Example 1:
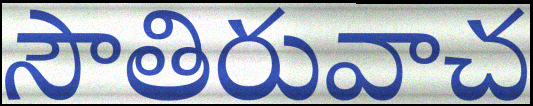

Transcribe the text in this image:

సౌతిరువాచ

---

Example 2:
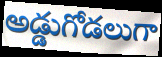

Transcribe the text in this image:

అడ్డుగోడలుగా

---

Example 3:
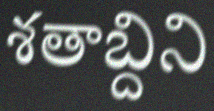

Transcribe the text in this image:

శతాబ్దిని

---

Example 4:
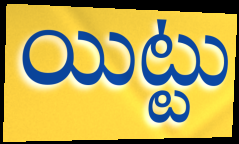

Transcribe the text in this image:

యిట్టు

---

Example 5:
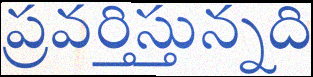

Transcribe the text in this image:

ప్రవర్తిస్తున్నది